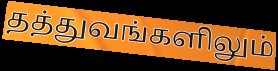
தத்துவங்களிலும்